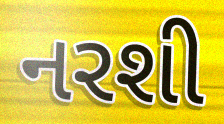
નરશી